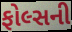
ફોલ્સની